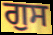
ਗੁਸ